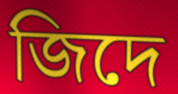
জিদে